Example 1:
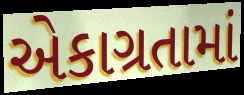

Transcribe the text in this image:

એકાગ્રતામાં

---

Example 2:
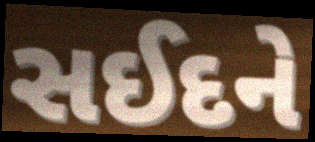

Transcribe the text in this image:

સઈદને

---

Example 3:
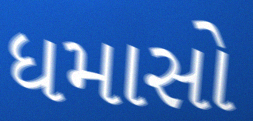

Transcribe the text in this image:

ધમાસો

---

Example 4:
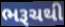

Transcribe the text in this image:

ભરૂચથી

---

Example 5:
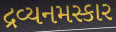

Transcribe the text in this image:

દ્રવ્યનમસ્કાર